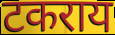
टकराय